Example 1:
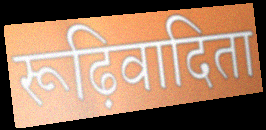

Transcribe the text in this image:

रूढ़िवादिता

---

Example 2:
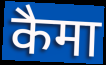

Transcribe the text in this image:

कैमा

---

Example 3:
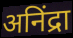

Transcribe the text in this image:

अनिंद्रा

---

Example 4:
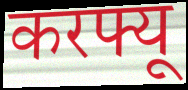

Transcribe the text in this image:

करफ्यू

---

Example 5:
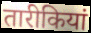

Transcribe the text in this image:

तारीकियां